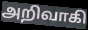
அறிவாகி